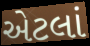
એટલાં